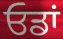
ਓਡਾਂ